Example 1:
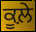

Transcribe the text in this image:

ਕੂਲ਼ੇ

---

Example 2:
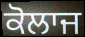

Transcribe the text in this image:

ਕੋਲਾਜ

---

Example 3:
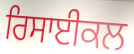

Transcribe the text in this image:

ਰਿਸਾਈਕਲ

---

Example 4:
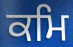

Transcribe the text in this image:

ਕਮਿ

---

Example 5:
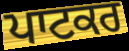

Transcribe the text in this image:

ਪਾਟਕਰ